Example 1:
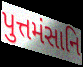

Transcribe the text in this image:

પુત્તમંસાનિ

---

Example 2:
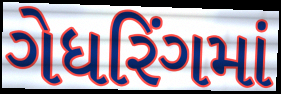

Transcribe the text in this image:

ગેધરિંગમાં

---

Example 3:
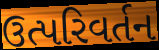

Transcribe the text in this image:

ઉત્પરિવર્તન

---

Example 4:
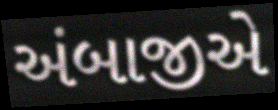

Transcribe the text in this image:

અંબાજીએ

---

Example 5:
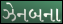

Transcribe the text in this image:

ઝેનબના